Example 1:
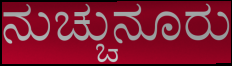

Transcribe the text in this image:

ನುಚ್ಚುನೂರು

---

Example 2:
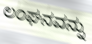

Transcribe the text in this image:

ಲಂಘನವನ್ನು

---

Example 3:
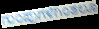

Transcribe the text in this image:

ಗುಂಪುಗಳಿಗಿಂತಲೂ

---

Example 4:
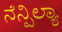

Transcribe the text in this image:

ನೆನ್ಪಿಲ್ಯಾ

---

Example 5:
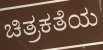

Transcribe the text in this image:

ಚಿತ್ರಕತೆಯ